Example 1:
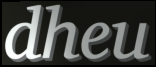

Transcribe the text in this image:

dheu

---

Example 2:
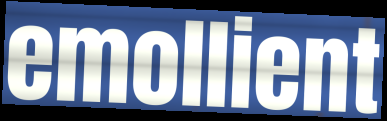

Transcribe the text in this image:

emollient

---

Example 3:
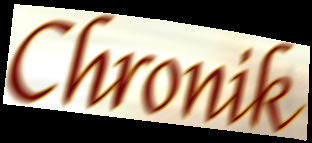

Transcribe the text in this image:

Chronik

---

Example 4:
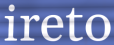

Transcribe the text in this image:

ireto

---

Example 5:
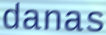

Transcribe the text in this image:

danas